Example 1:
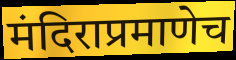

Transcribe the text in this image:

मंदिराप्रमाणेच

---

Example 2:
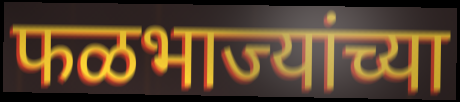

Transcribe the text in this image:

फळभाज्यांच्या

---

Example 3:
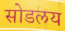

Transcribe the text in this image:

सोडलय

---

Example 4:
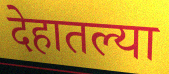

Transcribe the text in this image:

देहातल्या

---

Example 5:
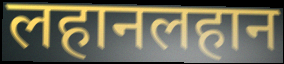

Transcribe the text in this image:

लहानलहान